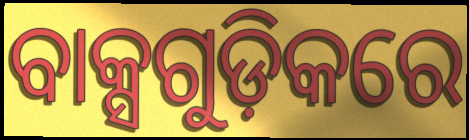
ବାକ୍ସଗୁଡ଼ିକରେ